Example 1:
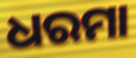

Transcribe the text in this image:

ଧରମା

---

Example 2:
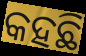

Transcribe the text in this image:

କହଛି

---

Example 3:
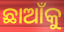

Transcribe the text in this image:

ଛାଆଁକୁ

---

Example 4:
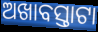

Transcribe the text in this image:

ଅଖାବସ୍ତାଟା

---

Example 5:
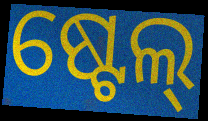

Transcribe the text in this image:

ଷ୍ଟେଲ୍